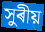
সুৰীয়